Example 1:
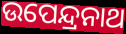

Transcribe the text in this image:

ଉପେନ୍ଦ୍ରନାଥ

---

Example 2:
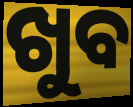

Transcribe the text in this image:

ଖୁବ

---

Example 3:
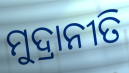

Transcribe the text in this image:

ମୁଦ୍ରାନୀତି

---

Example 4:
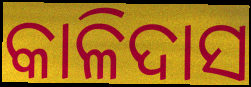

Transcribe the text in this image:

କାଳିଦାସ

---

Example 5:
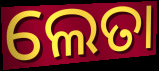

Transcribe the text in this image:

ଲେତା